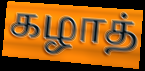
கழாத்